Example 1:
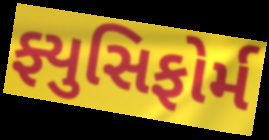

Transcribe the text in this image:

ફ્યુસિફોર્મ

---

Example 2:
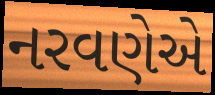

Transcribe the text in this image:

નરવણેએ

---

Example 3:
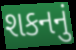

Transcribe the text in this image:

શકનનું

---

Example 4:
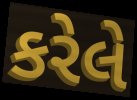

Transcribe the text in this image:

કરેલે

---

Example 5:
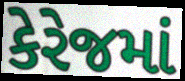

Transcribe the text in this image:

કેરેજમાં